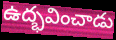
ఉద్భవించాడు